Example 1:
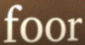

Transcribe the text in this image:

foor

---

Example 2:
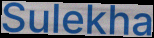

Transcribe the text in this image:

Sulekha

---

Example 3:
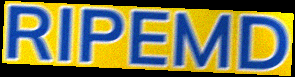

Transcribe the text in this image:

RIPEMD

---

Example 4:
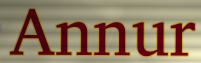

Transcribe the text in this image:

Annur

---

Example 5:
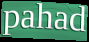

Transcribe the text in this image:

pahad